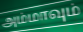
அம்மாவும்